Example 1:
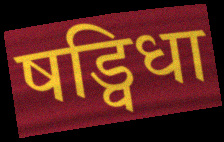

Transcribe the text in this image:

षड्विधा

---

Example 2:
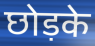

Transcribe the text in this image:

छोड़के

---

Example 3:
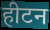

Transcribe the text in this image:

हीटन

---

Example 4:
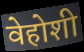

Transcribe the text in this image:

वेहोशी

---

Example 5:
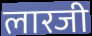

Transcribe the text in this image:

लारजी